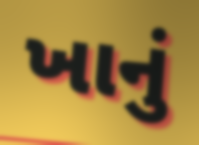
ખાનું